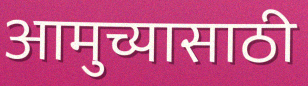
आमुच्यासाठी